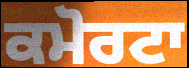
ਕਮੋਰਟਾ